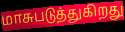
மாசுபடுத்துகிறது